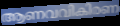
ആണവവികിരണ